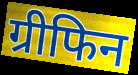
ग्रीफिन